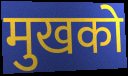
मुखको